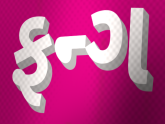
ફન્ગ